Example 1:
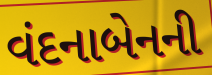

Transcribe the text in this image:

વંદનાબેનની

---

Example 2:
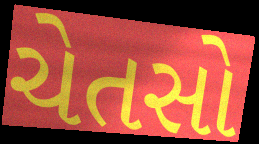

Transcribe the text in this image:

ચેતસો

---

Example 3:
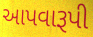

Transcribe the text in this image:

આપવારૂપી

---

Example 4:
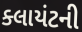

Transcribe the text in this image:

ક્લાયંટની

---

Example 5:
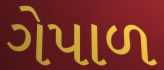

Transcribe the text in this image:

ગેપાળ